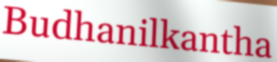
Budhanilkantha